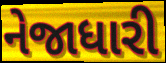
નેજાધારી